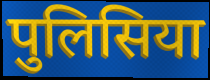
पुलिसिया